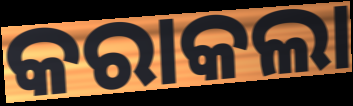
କରାକଲା